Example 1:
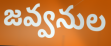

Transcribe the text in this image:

జవ్వనుల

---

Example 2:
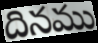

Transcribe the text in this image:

దినము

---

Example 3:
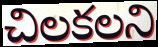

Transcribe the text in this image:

చిలకలని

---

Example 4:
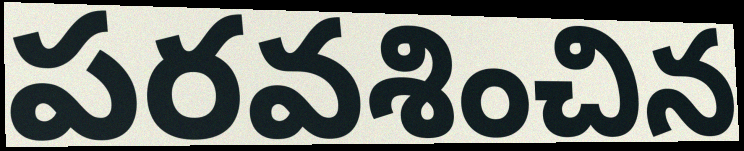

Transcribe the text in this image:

పరవశించిన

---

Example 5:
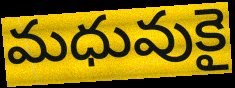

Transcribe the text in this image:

మధువుకై